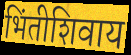
भिंतीशिवाय